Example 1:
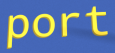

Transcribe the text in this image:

port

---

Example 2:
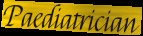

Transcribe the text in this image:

Paediatrician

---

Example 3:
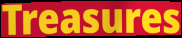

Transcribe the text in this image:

Treasures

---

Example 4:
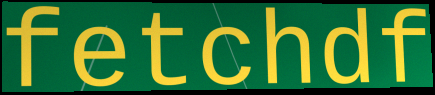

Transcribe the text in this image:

fetchdf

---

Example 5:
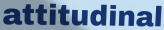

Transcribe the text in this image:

attitudinal